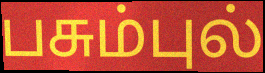
பசும்புல்